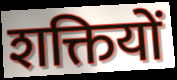
शक्तियों